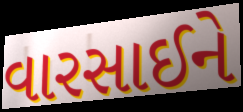
વારસાઈને